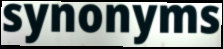
synonyms